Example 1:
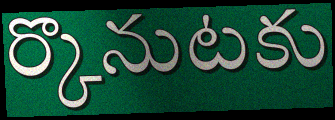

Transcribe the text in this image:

ర్కొనుటకు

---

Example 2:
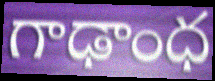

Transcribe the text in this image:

గాఢాంధ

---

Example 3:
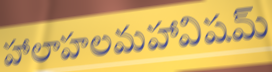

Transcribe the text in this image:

హాలాహలమహావిషమ్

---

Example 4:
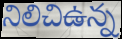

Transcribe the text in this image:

నిలిచిఉన్న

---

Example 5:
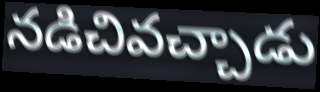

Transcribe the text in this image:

నడిచివచ్చాడు